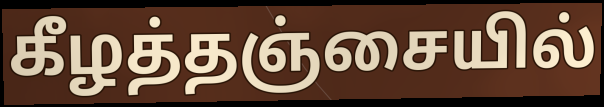
கீழத்தஞ்சையில்